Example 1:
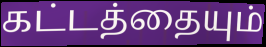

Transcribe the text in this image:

கட்டத்தையும்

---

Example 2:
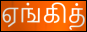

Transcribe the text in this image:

ஏங்கித்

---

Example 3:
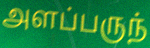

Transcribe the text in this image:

அளப்பருந்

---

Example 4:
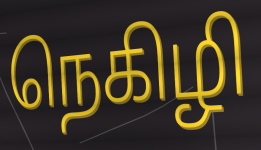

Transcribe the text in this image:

நெகிழி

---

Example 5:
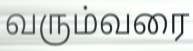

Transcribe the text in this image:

வரும்வரை